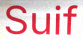
Suif